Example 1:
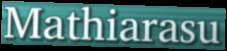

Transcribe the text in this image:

Mathiarasu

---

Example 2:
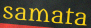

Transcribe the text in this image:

samata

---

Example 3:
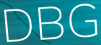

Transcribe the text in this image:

DBG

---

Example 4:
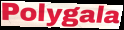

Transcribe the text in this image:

Polygala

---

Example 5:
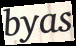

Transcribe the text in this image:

byas